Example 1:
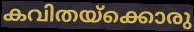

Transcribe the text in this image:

കവിതയ്ക്കൊരു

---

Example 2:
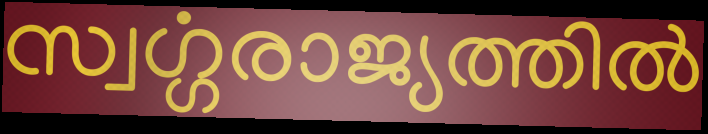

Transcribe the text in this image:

സ്വൎഗ്ഗരാജ്യത്തിൽ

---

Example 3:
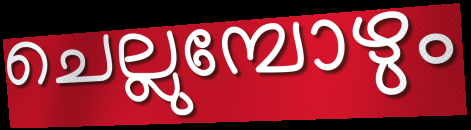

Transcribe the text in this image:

ചെല്ലുമ്പോഴും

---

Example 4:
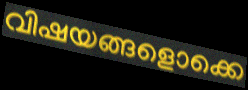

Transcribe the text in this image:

വിഷയങ്ങളൊക്കെ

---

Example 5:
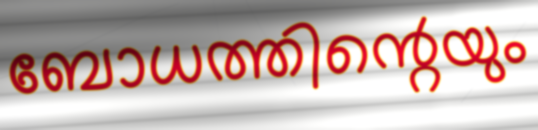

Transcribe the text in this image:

ബോധത്തിന്റെയും